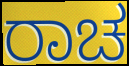
ರಾಚ